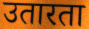
उतारता